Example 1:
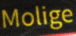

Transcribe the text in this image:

Molige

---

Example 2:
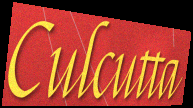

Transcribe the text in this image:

Culcutta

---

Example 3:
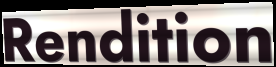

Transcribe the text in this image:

Rendition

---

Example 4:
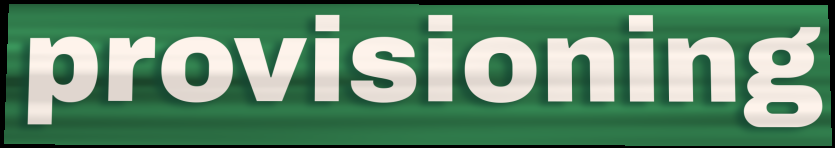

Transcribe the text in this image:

provisioning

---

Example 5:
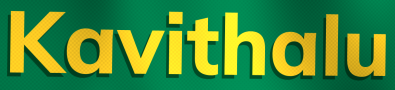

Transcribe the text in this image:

Kavithalu